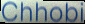
Chhobi